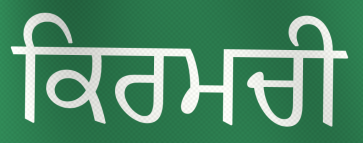
ਕਿਰਮਚੀ